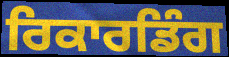
ਰਿਕਾਰਡਿੰਗ